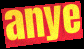
anye